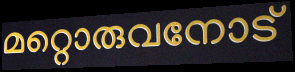
മറ്റൊരുവനോട്